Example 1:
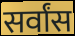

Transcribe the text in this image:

सर्वांस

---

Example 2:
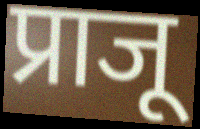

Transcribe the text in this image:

प्राजू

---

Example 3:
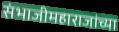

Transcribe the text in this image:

संभाजीमहाराजांच्या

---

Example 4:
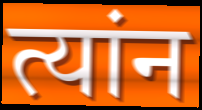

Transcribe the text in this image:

त्यांन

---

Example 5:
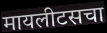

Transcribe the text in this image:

मायलीटसचा